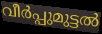
വീർപ്പുമുട്ടൽ